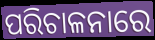
ପରିଚାଳନାରେ